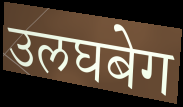
उलघबेग